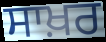
ਸਾਖ਼ਰ